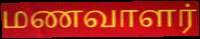
மணவாளர்